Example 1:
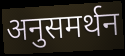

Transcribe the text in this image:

अनुसमर्थन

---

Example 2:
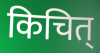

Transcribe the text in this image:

किचित्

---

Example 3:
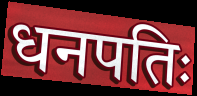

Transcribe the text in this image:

धनपतिः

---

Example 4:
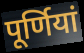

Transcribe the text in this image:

पूर्णियां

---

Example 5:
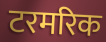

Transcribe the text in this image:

टरमरिक